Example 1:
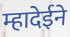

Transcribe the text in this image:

म्हादेईने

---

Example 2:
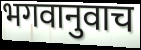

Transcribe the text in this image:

भगवानुवाच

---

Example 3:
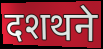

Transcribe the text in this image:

दशथने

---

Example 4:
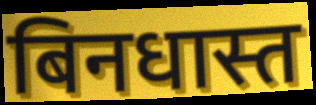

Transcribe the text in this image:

बिनधास्त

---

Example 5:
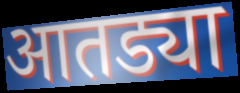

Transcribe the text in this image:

आतड्या